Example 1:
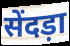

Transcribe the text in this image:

सेंदड़ा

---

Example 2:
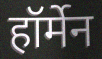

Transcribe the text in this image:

हॉर्मेन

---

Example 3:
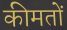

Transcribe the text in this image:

कीमतों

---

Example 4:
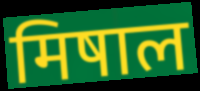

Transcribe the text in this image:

मिषाल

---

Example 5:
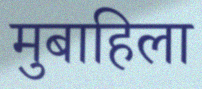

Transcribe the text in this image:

मुबाहिला